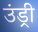
उंड्री